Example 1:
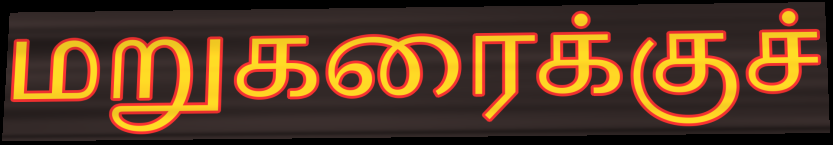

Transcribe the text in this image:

மறுகரைக்குச்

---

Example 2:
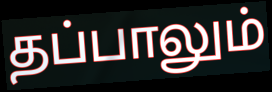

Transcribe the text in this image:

தப்பாலும்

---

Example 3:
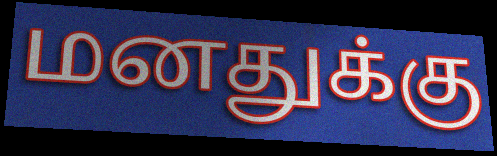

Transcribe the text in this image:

மனதுக்கு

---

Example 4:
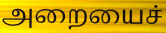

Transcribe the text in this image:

அறையைச்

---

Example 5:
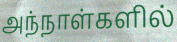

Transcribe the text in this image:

அந்நாள்களில்